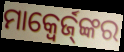
ମାକ୍ୱେର୍ଜ୍‌ଙ୍କର